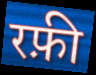
रफ़ी